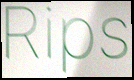
Rips